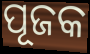
ପୂଜକ